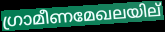
ഗ്രാമീണമേഖലയില്